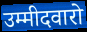
उम्मीदवारो